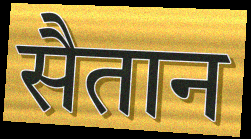
सैतान